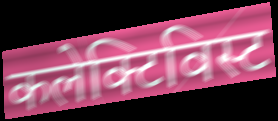
कलेक्टिविस्ट